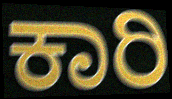
ಕಾರಿ